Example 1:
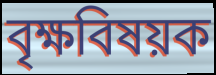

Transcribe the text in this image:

বৃক্ষবিষয়ক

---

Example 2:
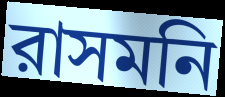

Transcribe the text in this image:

রাসমনি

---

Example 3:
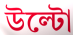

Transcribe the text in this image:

উল্টো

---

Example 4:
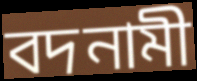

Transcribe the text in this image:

বদনামী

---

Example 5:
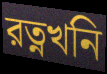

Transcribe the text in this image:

রত্নখনি